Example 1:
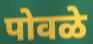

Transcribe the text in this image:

पोवळे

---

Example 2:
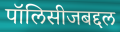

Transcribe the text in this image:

पॉलिसीजबद्दल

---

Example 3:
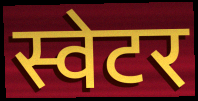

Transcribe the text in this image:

स्वेटर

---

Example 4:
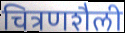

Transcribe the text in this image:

चित्रणशैली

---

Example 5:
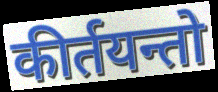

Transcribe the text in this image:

कीर्तयन्तो